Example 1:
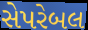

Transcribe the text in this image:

સેપરેબલ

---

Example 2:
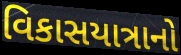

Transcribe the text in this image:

વિકાસયાત્રાનો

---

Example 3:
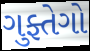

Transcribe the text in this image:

ગુફ્તેગો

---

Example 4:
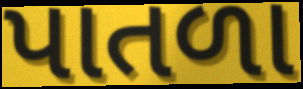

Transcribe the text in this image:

પાતળા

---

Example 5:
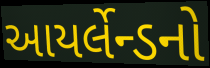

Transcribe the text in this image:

આયર્લેન્ડનો